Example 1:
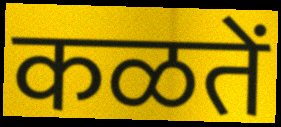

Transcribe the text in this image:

कळतें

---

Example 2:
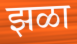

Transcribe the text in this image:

झळा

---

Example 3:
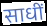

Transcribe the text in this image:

साधीं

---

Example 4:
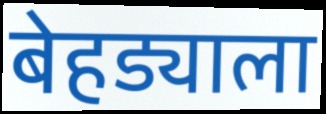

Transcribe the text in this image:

बेहड्याला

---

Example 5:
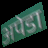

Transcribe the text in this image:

अपेडा